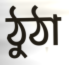
ঠুঠা